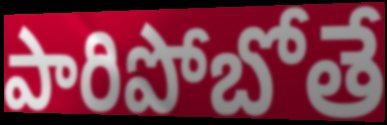
పారిపోబోతే